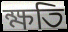
ক্ষতি